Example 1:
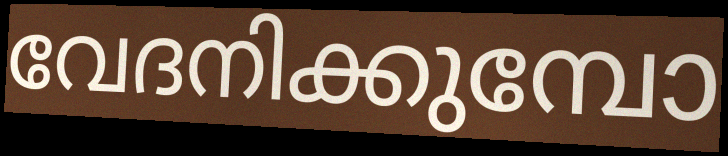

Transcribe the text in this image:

വേദനിക്കുമ്പോ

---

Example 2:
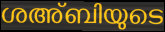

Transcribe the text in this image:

ശഅ്ബിയുടെ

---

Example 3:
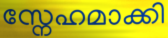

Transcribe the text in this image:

സ്നേഹമാക്കി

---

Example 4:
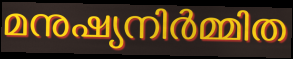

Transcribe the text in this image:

മനുഷ്യനിർമ്മിത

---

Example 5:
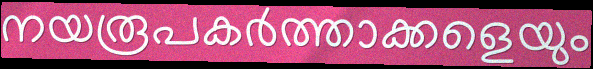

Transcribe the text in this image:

നയരൂപകർത്താക്കളെയും